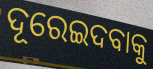
ଦୂରେଇଦବାକୁ